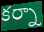
కర్నా